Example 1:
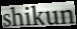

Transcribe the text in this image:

shikun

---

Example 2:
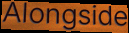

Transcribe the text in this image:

Alongside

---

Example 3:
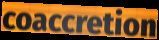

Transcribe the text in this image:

coaccretion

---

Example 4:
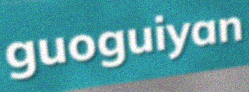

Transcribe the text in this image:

guoguiyan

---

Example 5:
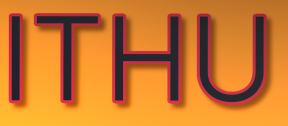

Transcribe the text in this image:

ITHU